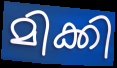
മിക്കി